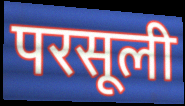
परसूली